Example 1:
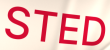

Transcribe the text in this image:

STED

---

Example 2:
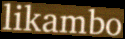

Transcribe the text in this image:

likambo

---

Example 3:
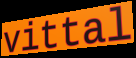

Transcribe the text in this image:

vittal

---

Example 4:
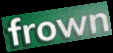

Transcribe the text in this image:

frown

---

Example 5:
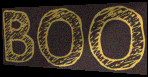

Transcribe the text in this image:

BOO